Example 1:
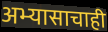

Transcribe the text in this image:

अभ्यासाचाही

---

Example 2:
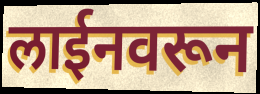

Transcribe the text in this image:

लाईनवरून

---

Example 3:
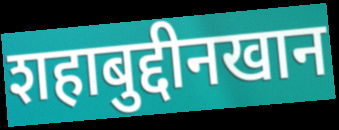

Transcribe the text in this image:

शहाबुद्दीनखान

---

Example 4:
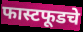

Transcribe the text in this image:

फास्टफूडचे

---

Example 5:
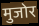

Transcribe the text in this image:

मुजोर